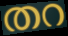
തറ